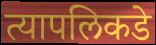
त्यापलिकडे